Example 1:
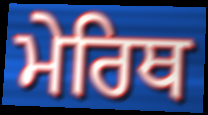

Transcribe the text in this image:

ਮੇਰਿਥ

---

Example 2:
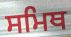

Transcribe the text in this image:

ਸਮਿਥ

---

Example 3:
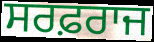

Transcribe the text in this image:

ਸਰਫ਼ਰਾਜ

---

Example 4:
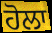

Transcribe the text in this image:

ਹੋਲਾ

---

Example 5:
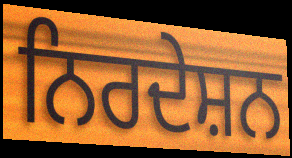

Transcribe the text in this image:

ਨਿਰਦੇਸ਼ਨ